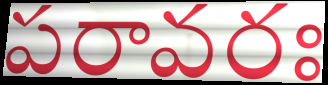
పరావరః